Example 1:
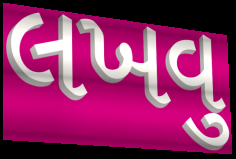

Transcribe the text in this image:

લખવુ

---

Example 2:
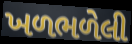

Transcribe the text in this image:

ખળભળેલી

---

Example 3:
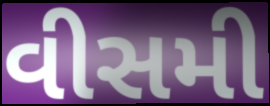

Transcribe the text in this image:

વીસમી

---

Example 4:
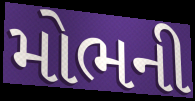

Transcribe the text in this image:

મોભની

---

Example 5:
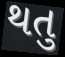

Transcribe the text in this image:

થતુ